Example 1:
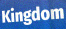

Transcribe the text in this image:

Kingdom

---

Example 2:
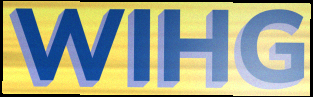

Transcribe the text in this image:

WIHG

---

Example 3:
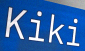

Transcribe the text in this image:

Kiki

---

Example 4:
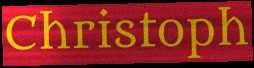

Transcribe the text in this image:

Christoph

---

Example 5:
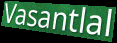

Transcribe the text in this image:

Vasantlal